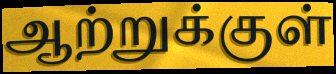
ஆற்றுக்குள்